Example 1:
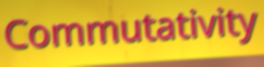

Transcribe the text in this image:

Commutativity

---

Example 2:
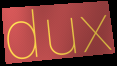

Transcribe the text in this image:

dux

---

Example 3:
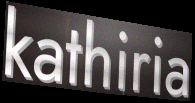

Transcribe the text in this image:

kathiria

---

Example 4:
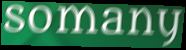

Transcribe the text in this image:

somany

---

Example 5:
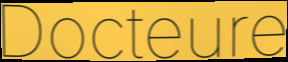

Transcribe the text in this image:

Docteure